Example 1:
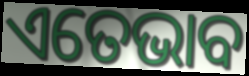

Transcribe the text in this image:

ଏତେଭାବ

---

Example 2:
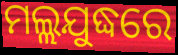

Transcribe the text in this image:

ମଲ୍ଲଯୁଦ୍ଧରେ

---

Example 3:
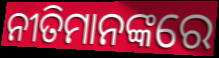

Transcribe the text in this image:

ନୀତିମାନଙ୍କରେ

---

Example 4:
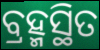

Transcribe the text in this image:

ବ୍ରହ୍ମସ୍ଥିତ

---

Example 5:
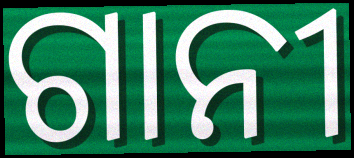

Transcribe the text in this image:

ଗାନୀ